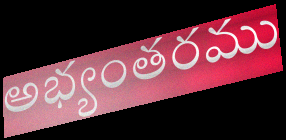
అభ్యంతరము